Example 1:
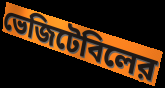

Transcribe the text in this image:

ভেজিটেবিলের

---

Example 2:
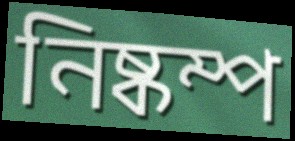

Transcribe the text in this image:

নিষ্কম্প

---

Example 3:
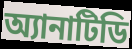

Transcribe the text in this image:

অ্যানাটিডি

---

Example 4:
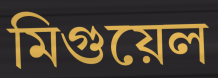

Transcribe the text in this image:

মিগুয়েল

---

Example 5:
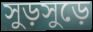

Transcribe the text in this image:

সুড়সুড়ে